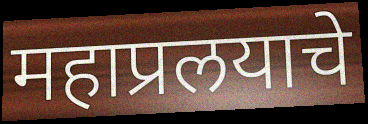
महाप्रलयाचे